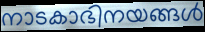
നാടകാഭിനയങ്ങൾ